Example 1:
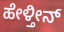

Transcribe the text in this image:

ಹೇಳ್ತೀನ್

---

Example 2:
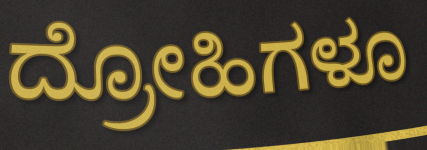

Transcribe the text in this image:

ದ್ರೋಹಿಗಳೂ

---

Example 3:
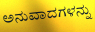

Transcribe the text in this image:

ಅನುವಾದಗಳನ್ನು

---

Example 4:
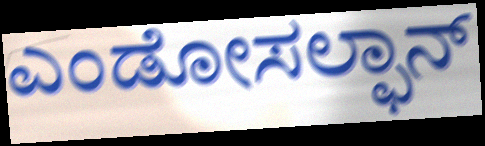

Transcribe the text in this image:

ಎಂಡೋಸಲ್ಫಾನ್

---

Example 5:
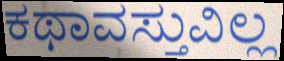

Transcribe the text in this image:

ಕಥಾವಸ್ತುವಿಲ್ಲ